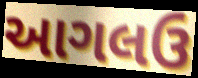
આગલઉ